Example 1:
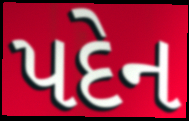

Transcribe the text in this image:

પદેન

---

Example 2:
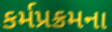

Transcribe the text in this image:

કર્મપ્રક્રમના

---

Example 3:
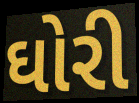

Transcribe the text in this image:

ઘોરી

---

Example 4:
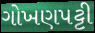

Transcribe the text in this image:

ગોખણપટ્ટી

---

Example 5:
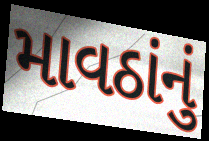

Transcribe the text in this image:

માવઠાંનું